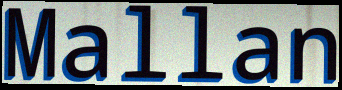
Mallan